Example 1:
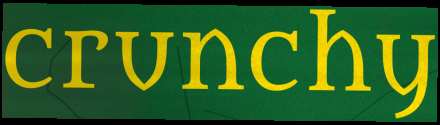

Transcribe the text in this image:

crunchy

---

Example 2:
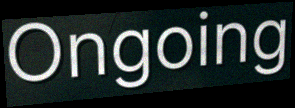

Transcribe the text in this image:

Ongoing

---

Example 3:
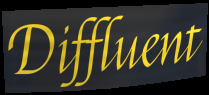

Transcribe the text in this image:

Diffluent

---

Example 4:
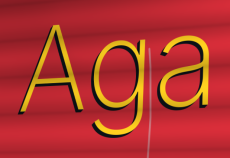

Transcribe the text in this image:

Aga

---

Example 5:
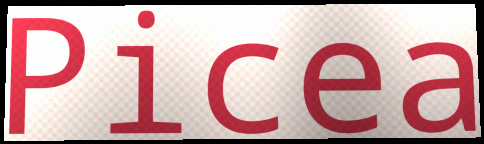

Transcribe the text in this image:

Picea